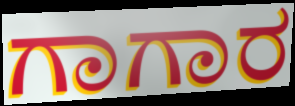
ಗಾಗಾರ